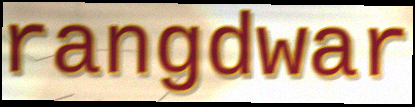
rangdwar